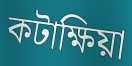
কটাক্ষিয়া